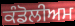
ਕੰਡੋਲੀਅਮ